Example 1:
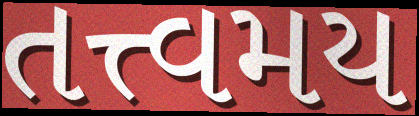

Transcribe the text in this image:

તત્ત્વમય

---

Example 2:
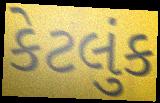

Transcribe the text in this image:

કેટલુંક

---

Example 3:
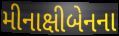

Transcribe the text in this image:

મીનાક્ષીબેનના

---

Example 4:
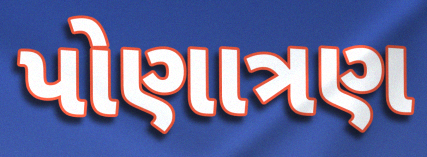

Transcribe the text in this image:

પોણાત્રણ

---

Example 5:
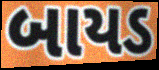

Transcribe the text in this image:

બાયડ